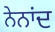
ਨੇਨਾਂਦ